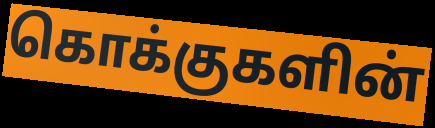
கொக்குகளின்